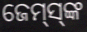
ଜେମ୍‌ସ୍‌ଙ୍କ